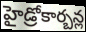
హైడ్రోకార్బన్ల